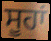
ਸੂਹਾਂ